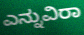
ಎನ್ನುವಿರಾ